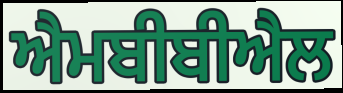
ਐਮਬੀਬੀਐਲ